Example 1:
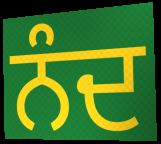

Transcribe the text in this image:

ਨੰਦ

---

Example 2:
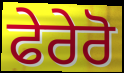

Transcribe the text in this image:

ਫੇਰੇਰੋ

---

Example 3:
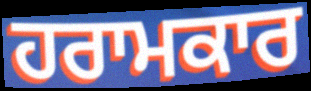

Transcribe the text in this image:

ਹਰਾਮਕਾਰ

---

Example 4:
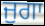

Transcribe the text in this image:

ਜੁਗਾ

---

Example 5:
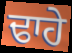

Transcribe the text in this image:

ਢਾਹੇ